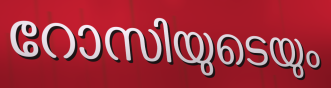
റോസിയുടെയും